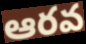
ఆరవ